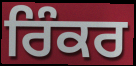
ਰਿੰਕਰ